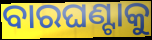
ବାରଘଣ୍ଟାକୁ